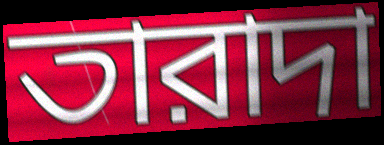
তারাদা